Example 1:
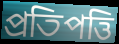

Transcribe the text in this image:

প্ৰতিপত্তি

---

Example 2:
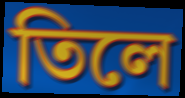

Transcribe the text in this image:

তিলে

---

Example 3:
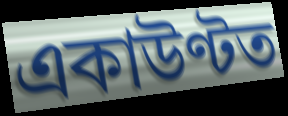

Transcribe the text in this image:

একাউণ্টত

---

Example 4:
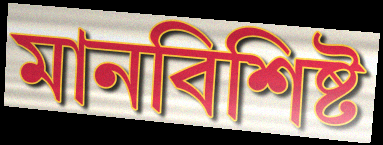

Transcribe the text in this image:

মানবিশিষ্ট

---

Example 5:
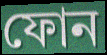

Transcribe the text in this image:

ফোন